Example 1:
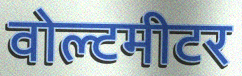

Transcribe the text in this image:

वोल्टमीटर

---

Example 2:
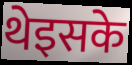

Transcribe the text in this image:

थेइसके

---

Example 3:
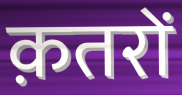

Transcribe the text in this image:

क़तरों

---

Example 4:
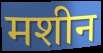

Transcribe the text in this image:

मशीन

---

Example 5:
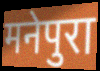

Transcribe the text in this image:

मनेपुरा